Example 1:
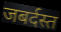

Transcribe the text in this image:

जबर्दस्त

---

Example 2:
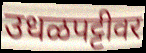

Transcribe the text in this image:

उधळपट्टीवर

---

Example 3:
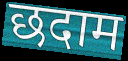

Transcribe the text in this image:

छदाम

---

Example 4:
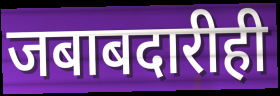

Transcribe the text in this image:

जबाबदारीही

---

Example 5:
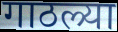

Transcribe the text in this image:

गाठल्या